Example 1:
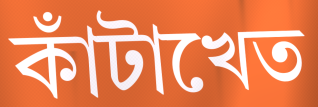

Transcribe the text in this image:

কাঁটাখেত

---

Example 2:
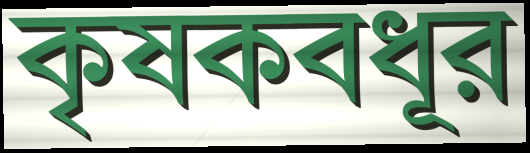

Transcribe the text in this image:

কৃষকবধূর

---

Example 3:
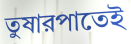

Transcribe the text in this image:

তুষারপাতেই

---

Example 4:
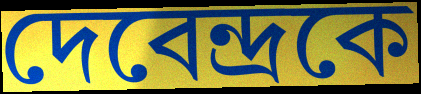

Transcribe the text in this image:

দেবেন্দ্রকে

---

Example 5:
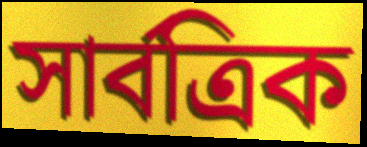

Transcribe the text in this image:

সার্বত্রিক